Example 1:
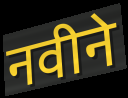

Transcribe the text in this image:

नवीने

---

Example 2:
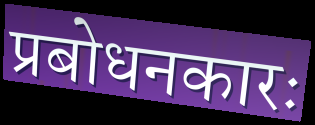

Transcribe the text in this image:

प्रबोधनकारः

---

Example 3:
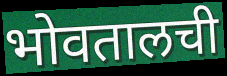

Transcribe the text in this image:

भोवतालची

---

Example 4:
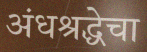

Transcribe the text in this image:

अंधश्रद्धेचा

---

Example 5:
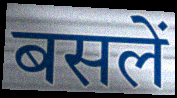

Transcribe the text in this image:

बसलें